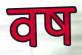
वष